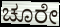
ಚೂರೇ